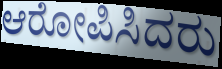
ಆರೋಪಿಸಿದರು